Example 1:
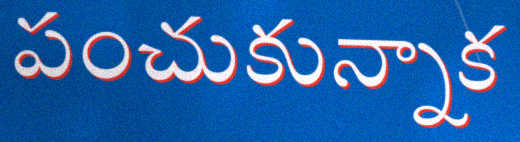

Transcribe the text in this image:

పంచుకున్నాక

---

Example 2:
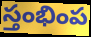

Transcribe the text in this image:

స్తంభింప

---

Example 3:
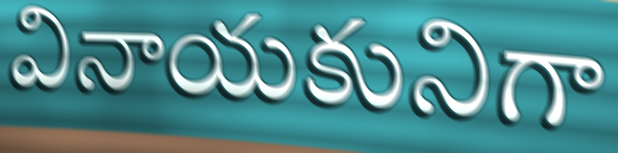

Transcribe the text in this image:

వినాయకునిగా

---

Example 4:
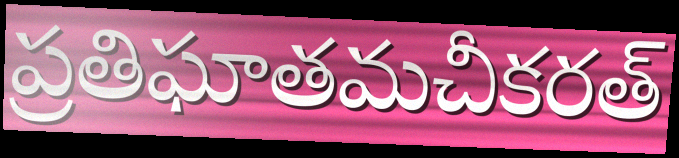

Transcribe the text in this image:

ప్రతిఘాతమచీకరత్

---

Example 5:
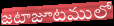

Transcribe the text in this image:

జటాజూటములో